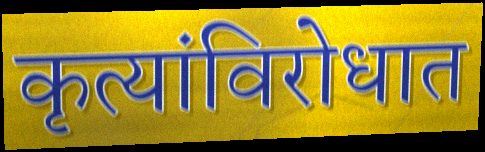
कृत्यांविरोधात